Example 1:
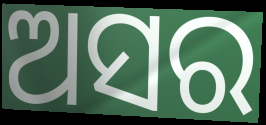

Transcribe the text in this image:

ଅସର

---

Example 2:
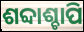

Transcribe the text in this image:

ଶବ୍ଦାଶ୍ଚାପି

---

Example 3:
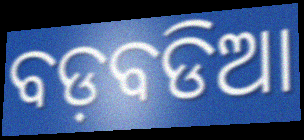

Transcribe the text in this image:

ବଡ଼ବଡିଆ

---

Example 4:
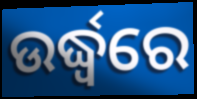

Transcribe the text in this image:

ଉର୍ଦ୍ଧ୍ଵରେ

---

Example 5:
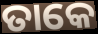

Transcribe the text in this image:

ତାକେ